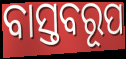
ବାସ୍ତବରୂପ